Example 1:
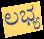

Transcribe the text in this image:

ಲಭ್ಯ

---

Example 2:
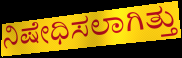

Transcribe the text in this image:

ನಿಷೇಧಿಸಲಾಗಿತ್ತು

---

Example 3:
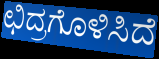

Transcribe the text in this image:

ಛಿದ್ರಗೊಳಿಸಿದೆ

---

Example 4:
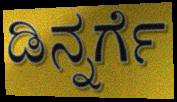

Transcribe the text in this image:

ಡಿನ್ನರ್ಗೆ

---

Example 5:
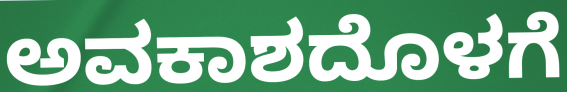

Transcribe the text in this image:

ಅವಕಾಶದೊಳಗೆ